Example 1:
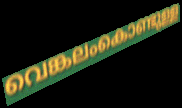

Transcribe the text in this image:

വെങ്കലംകൊണ്ടുള്ള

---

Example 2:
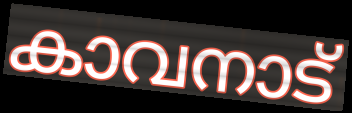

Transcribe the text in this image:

കാവനാട്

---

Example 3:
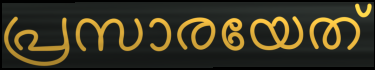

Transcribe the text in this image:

പ്രസാരയേത്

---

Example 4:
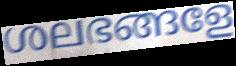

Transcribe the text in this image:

ശലഭങ്ങളേ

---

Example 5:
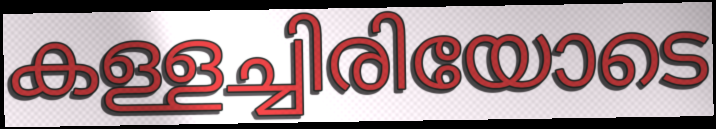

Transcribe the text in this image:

കള്ളച്ചിരിയോടെ